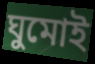
ঘুমোই